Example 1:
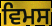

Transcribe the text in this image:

ਵਿਮਸ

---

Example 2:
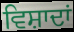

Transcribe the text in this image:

ਵਿਸ਼ਾਦਾਂ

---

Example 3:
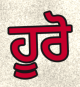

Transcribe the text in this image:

ਹੂਰੋ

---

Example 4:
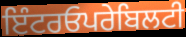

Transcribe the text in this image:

ਇੰਟਰਓਪਰੇਬਿਲਟੀ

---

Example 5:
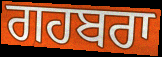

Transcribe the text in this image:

ਗਹਬਰਾ